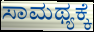
ಸಾಮಥ್ಯಕ್ಕೆ